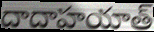
దాదాహయాత్